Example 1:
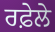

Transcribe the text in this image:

ਰਫ਼ੇਲੇ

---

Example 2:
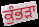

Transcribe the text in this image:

ਕੁੰਭੜਾ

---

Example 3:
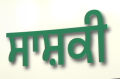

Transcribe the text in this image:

ਸਾਸ਼ਕੀ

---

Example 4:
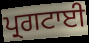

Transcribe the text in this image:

ਪ੍ਰ੍ਰਗਟਾਈ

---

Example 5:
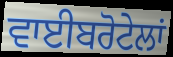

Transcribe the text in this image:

ਵਾਈਬਰੋਟੇਲਾਂ